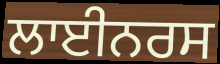
ਲਾਈਨਰਸ